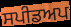
ਸਪੀਡਅਪ